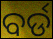
ବର୍ଡ